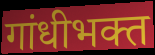
गांधीभक्त